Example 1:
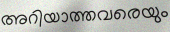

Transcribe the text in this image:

അറിയാത്തവരെയും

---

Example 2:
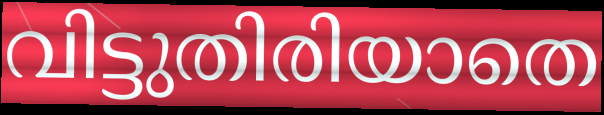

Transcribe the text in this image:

വിട്ടുതിരിയാതെ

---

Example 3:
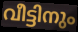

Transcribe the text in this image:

വീട്ടിനും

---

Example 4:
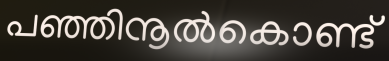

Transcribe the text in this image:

പഞ്ഞിനൂൽകൊണ്ട്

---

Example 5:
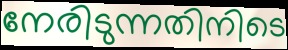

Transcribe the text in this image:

നേരിടുന്നതിനിടെ